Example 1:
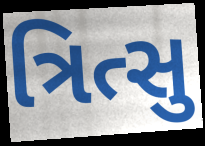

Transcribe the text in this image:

ત્રિત્સુ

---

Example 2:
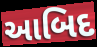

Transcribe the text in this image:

આબિદ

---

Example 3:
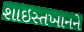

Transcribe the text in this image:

શાઇસ્તખાનને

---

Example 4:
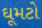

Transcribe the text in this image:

ઘૂમટો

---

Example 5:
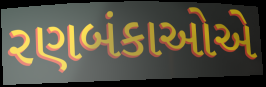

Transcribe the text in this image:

રણબંકાઓએ